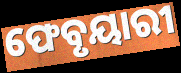
ଫେବୃୟାରୀ